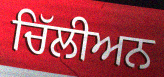
ਚਿੱਲੀਅਨ